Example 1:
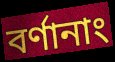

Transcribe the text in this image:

বর্ণানাং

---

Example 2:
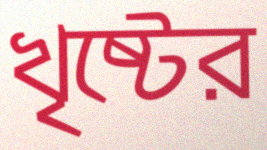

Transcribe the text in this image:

খৃষ্টের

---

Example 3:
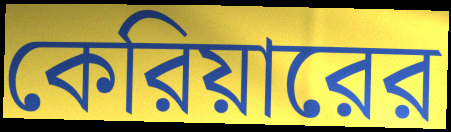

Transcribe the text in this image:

কেরিয়ারের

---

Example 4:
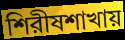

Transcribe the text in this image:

শিরীষশাখায়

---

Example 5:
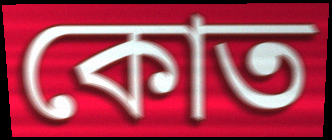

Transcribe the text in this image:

কোত